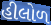
હીલોળ